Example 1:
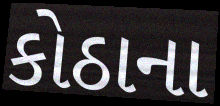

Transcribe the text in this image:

કોઠાના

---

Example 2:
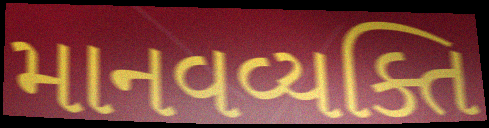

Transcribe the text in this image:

માનવવ્યક્તિ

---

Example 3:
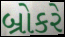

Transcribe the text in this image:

બ્રોકરે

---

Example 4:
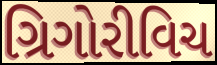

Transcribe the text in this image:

ગ્રિગોરીવિચ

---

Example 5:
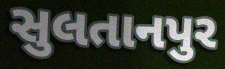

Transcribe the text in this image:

સુલતાનપુર